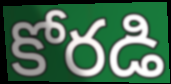
కోరడి